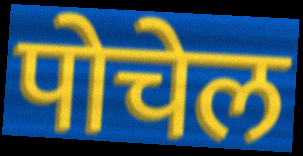
पोचेल